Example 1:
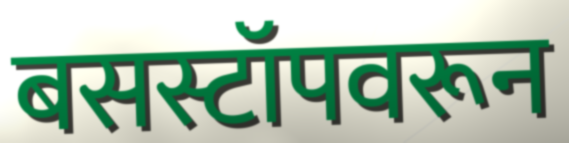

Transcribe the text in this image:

बसस्टॉपवरून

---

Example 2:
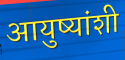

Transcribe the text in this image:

आयुष्यांशी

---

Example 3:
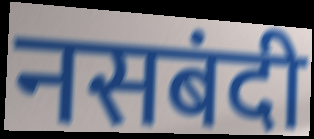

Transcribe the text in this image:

नसबंदी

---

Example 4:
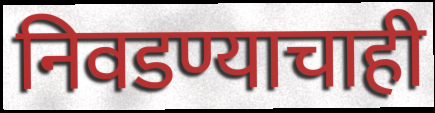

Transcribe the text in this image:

निवडण्याचाही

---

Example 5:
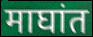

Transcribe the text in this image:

माघांत